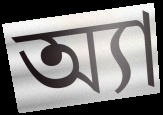
অ্যা